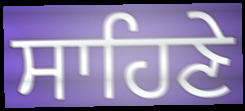
ਸਾਹਿਣੇ